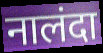
नालंदा